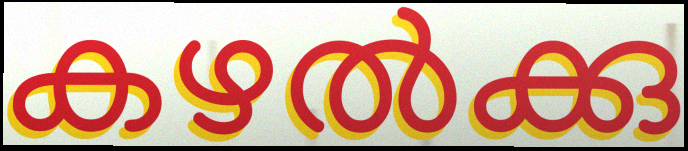
കഴൽക്കു